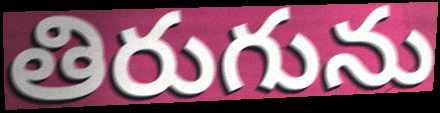
తిరుగును